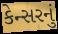
કેન્સરનું